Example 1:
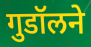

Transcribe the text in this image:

गुडॉलने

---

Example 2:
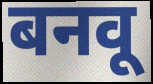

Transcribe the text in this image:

बनवू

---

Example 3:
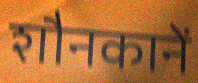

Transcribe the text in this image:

शौनकानें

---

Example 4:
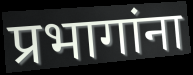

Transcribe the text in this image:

प्रभागांना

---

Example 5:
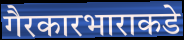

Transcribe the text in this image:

गैरकारभाराकडे